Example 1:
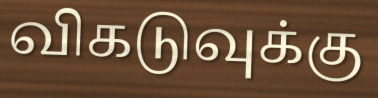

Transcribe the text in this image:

விகடுவுக்கு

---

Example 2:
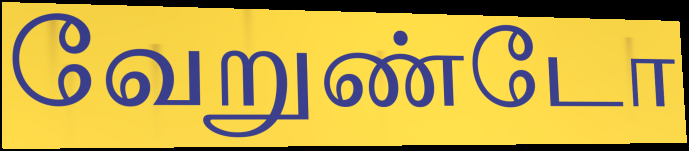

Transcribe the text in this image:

வேறுண்டோ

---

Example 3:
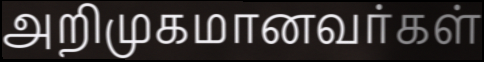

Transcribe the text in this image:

அறிமுகமானவர்கள்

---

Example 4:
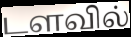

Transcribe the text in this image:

டளவில்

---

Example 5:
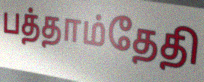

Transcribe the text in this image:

பத்தாம்தேதி